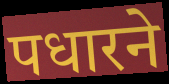
पधारने